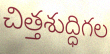
చిత్తశుద్ధిగల